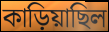
কাড়িয়াছিল